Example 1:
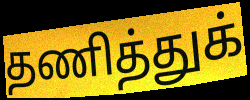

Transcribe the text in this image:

தணித்துக்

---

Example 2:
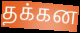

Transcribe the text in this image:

தக்கன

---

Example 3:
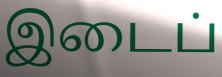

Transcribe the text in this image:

இடைப்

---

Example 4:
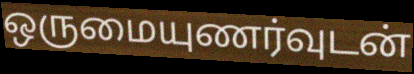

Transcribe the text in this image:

ஒருமையுணர்வுடன்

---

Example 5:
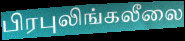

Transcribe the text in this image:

பிரபுலிங்கலீலை